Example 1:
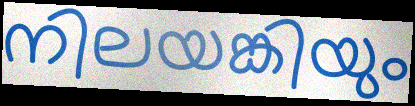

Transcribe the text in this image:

നിലയങ്കിയും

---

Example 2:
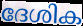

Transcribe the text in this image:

ദേശിക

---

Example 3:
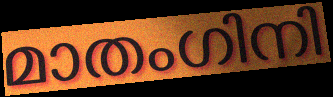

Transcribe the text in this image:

മാതംഗിനി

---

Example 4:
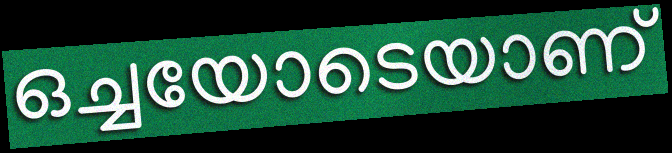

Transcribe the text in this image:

ഒച്ചയോടെയാണ്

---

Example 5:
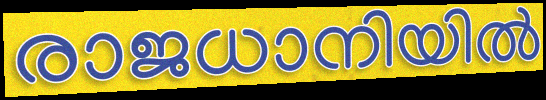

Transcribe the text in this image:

രാജധാനിയിൽ